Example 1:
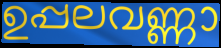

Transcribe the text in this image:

ഉപ്പലവണ്ണാ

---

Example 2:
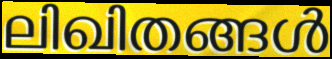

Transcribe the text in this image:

ലിഖിതങ്ങൾ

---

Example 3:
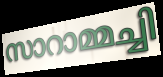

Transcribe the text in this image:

സാറാമ്മച്ചി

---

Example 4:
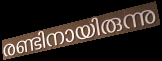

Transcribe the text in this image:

രണ്ടിനായിരുന്നു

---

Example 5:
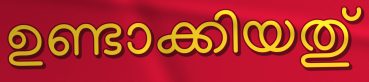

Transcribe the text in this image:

ഉണ്ടാക്കിയതു്